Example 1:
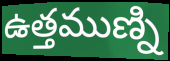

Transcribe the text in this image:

ఉత్తముణ్ని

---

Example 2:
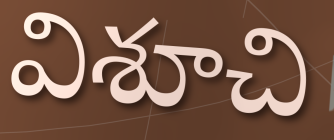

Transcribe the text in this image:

విశూచి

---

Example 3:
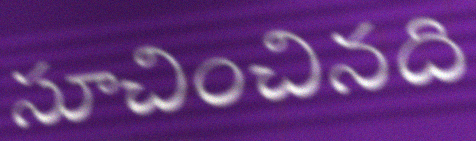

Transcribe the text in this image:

సూచించినది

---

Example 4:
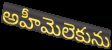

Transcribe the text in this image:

అహీమెలెకును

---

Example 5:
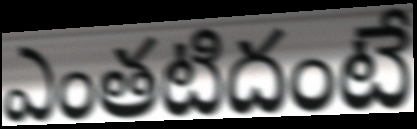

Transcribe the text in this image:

ఎంతటిదంటే